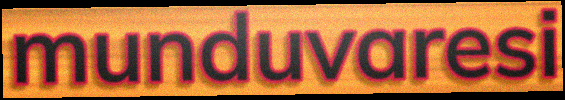
munduvaresi